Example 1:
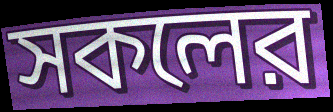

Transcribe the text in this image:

সকলের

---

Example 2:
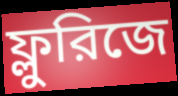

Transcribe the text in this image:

ফ্লুরিজে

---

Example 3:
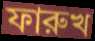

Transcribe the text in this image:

ফারুখ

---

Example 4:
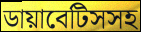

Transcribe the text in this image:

ডায়াবেটিসসহ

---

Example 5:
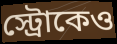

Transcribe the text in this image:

স্ট্রোকেও